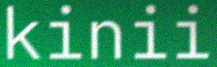
kinii